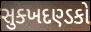
સુક્ખદણ્ડકો